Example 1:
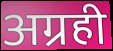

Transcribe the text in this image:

अग्रही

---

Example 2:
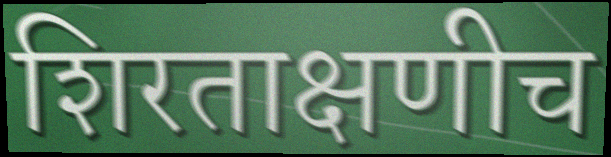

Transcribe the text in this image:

शिरताक्षणीच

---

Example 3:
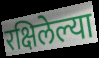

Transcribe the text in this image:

रक्षिलेल्या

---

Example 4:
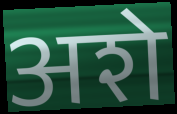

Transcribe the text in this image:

अशे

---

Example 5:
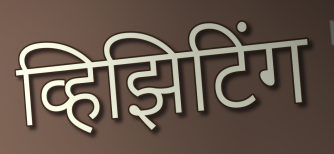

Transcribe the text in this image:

व्हिझिटिंग